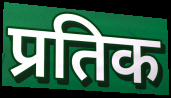
प्रतिक